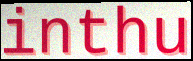
inthu